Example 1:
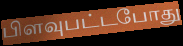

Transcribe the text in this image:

பிளவுபட்டபோது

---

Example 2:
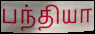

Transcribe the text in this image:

பந்தியா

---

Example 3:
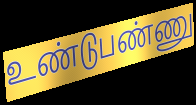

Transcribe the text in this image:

உண்டுபண்ணு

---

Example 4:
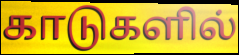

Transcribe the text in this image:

காடுகளில்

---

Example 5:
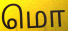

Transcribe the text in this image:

மொ